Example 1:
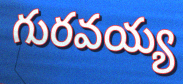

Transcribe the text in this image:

గురవయ్య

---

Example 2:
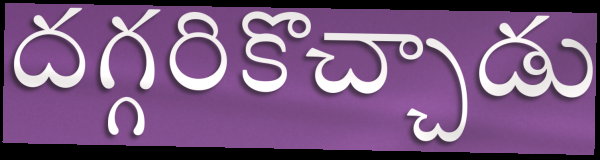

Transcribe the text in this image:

దగ్గరికొచ్చాడు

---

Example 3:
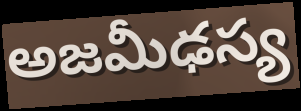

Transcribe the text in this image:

అజమీఢస్య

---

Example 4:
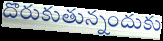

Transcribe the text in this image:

దొరుకుతున్నందుకు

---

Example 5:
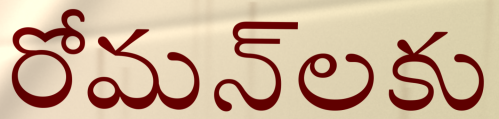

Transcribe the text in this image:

రోమన్‌లకు